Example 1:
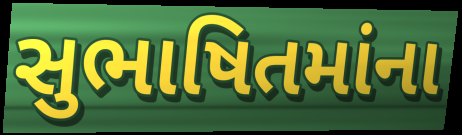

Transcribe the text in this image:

સુભાષિતમાંના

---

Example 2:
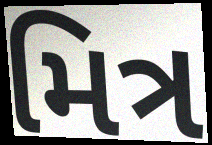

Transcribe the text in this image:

મિત્ર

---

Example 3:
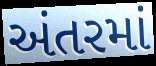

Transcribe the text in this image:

અંતરમાં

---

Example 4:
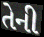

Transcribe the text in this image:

તેની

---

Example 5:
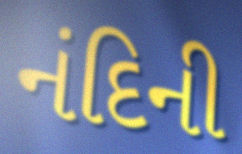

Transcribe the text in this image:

નંદિની